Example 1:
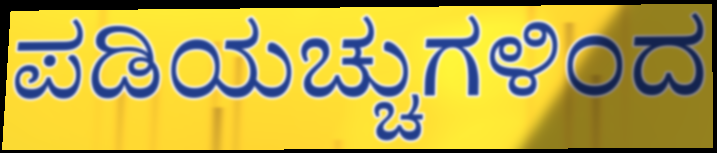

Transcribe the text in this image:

ಪಡಿಯಚ್ಚುಗಳಿಂದ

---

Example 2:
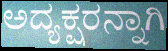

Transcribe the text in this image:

ಅದ್ಯಕ್ಷರನ್ನಾಗಿ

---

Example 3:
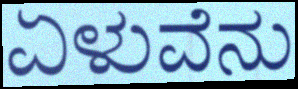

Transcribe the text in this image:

ಏಳುವೆನು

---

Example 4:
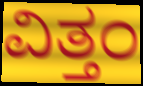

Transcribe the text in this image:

ವಿತ್ತಂ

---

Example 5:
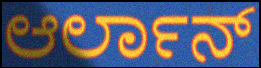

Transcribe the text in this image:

ಆರ್ಲಾನ್